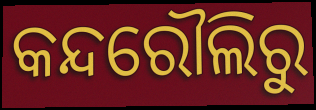
କନ୍ଦରୌଲିରୁ